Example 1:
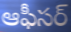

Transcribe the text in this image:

ఆఫీసర్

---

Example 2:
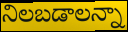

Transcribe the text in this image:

నిలబడాలన్నా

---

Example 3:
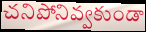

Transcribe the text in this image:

చనిపోనివ్వకుండా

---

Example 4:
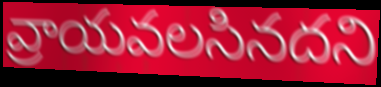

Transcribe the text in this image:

వ్రాయవలసినదని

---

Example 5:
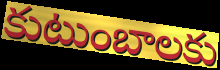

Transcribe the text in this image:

కుటుంబాలకు